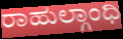
ರಾಹುಲ್ಗಾಂಧಿ